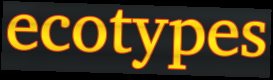
ecotypes